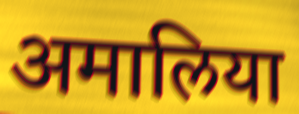
अमालिया